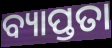
ବ୍ୟାପ୍ତତା